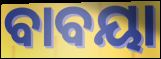
ବାବୟା